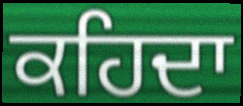
ਕਹਿਦਾ